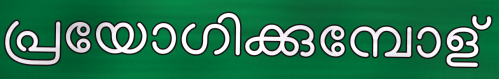
പ്രയോഗിക്കുമ്പോള്